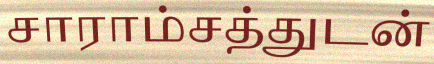
சாராம்சத்துடன்